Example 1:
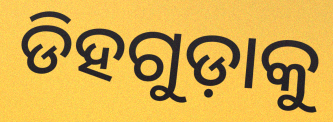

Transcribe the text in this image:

ଡିହଗୁଡ଼ାକୁ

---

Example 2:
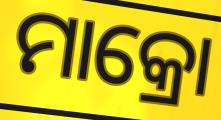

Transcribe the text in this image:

ମାକ୍ରୋ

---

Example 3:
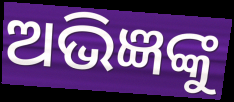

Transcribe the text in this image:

ଅଭିଜ୍ଞଙ୍କୁ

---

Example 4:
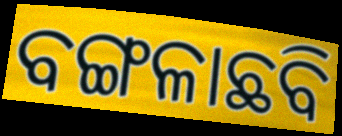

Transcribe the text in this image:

ବଙ୍ଗଳାଛବି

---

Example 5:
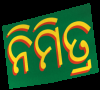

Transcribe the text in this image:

ନିମିତ୍ର